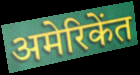
अमेरिकेंत